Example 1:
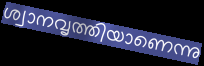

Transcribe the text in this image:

ശ്വാനവൃത്തിയാണെന്നു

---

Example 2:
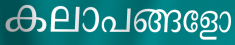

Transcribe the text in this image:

കലാപങ്ങളോ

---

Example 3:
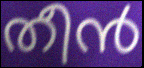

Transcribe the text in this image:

തീൻ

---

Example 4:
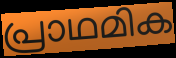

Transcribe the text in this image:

പ്രാഥമിക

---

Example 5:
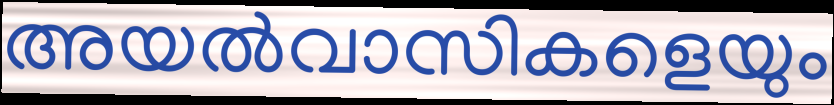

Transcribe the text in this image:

അയൽവാസികളെയും